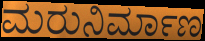
ಮರುನಿರ್ಮಾಣ